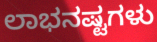
ಲಾಭನಷ್ಟಗಳು